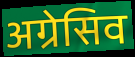
अग्रेसिव